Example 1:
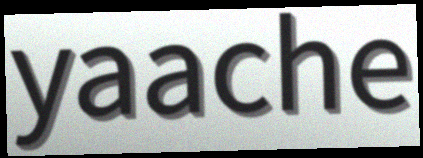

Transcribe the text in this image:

yaache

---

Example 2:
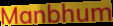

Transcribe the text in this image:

Manbhum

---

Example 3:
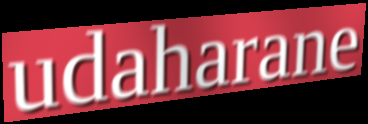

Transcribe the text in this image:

udaharane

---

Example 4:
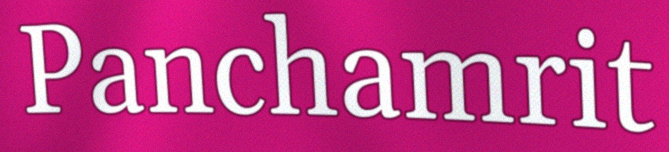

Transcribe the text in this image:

Panchamrit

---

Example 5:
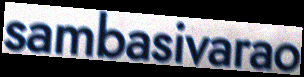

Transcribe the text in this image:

sambasivarao